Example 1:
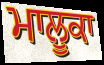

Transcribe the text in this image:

ਮਾਲੂਕਾ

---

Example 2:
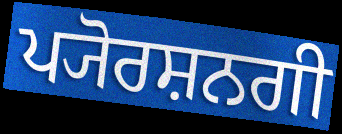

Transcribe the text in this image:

ਪ੍ਯੋਰਸ਼ਨਗੀ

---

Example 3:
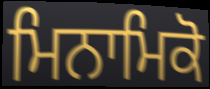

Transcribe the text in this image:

ਮਿਨਾਮਿਕੋ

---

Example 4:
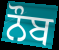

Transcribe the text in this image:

ਨੌਬ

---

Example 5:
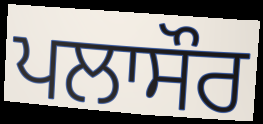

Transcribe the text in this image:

ਪਲਾਸੌਰ